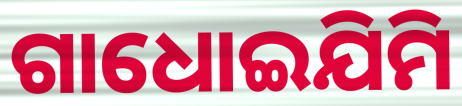
ଗାଧୋଇଯିମି